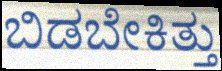
ಬಿಡಬೇಕಿತ್ತು